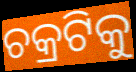
ଚକ୍ରଟିକୁ